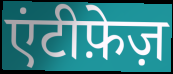
एंटीफ़ेज़